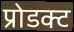
प्रोडक्ट